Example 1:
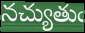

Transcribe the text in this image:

నచ్యుతుఁ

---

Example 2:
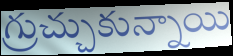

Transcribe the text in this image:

గ్రుచ్చుకున్నాయి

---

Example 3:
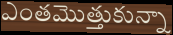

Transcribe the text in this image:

ఎంతమొత్తుకున్నా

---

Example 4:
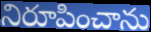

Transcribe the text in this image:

నిరూపించాను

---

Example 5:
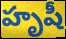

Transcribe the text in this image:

హృషీ